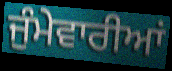
ਜੁੰਮੇਵਾਰੀਆਂ